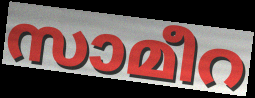
സാമീറ